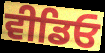
ਵੀਡਿਓ